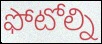
ఫోటోల్ని